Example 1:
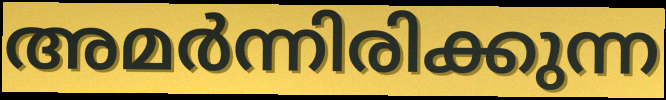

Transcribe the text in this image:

അമർന്നിരിക്കുന്ന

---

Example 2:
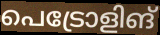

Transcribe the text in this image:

പെട്രോളിങ്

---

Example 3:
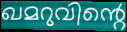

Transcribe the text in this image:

ഖമറുവിന്റെ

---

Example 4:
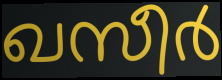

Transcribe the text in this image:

ഖസീർ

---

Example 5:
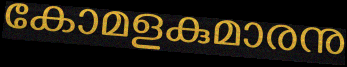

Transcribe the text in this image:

കോമളകുമാരനു